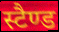
स्टैण्ड